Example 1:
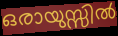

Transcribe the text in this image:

ഒരായുസ്സിൽ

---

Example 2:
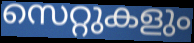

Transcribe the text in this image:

സെറ്റുകളും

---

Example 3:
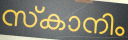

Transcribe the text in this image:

സ്‌കാനിം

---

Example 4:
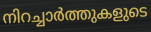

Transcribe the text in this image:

നിറച്ചാർത്തുകളുടെ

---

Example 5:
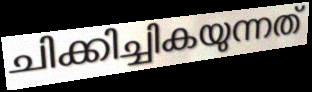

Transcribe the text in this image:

ചിക്കിച്ചികയുന്നത്